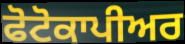
ਫੋਟੋਕਾਪੀਅਰ